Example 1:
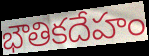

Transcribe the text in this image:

భౌతికదేహం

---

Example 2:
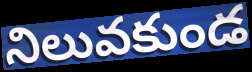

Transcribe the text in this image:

నిలువకుండ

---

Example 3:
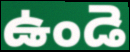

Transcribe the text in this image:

ఉండె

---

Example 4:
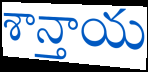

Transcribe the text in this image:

శాన్తాయ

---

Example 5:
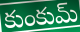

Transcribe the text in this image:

కుంకుమ్